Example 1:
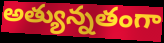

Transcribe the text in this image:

అత్యున్నతంగా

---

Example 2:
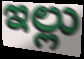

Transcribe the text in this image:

ఇల్లు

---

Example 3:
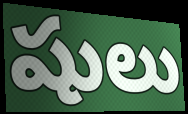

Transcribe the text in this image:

షులు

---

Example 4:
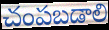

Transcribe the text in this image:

చంపబడాలి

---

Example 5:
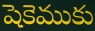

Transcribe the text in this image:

షెకెముకు